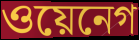
ওয়েনেগ